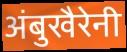
अंबुखैरेनी